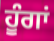
ਹੂੰਗਾਂ